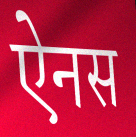
ऐनस